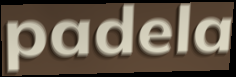
padela